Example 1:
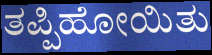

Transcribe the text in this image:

ತಪ್ಪಿಹೋಯಿತು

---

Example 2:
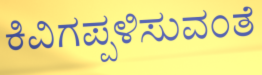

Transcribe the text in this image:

ಕಿವಿಗಪ್ಪಳಿಸುವಂತೆ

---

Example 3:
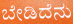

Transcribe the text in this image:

ಬೇಡಿದೆನು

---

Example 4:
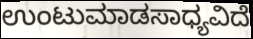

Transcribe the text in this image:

ಉಂಟುಮಾಡಸಾಧ್ಯವಿದೆ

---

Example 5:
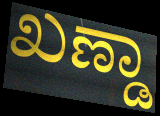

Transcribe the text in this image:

ಖಣ್ಡಾ